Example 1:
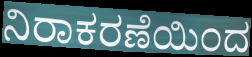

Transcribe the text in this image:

ನಿರಾಕರಣೆಯಿಂದ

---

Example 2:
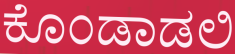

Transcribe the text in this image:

ಕೊಂಡಾಡಲಿ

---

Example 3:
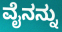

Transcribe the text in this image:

ವೈನನ್ನು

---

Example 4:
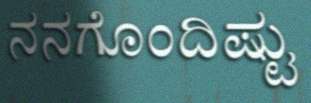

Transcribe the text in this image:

ನನಗೊಂದಿಷ್ಟು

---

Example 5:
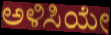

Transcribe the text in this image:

ಅಳಿಸಿಯೇ